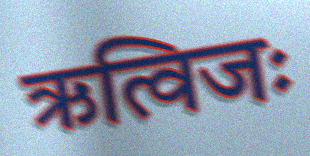
ऋत्विजः